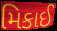
મિકાઈ